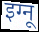
इग्‍नू